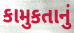
કામુકતાનું